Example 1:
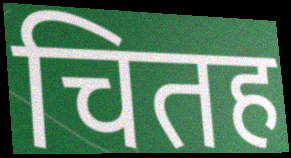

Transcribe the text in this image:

चितह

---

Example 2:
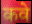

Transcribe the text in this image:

कवे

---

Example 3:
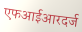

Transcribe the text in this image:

एफआईआरदर्ज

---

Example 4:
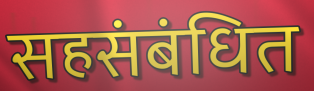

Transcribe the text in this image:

सहसंबंधित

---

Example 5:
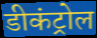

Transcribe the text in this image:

डीकंट्रोल